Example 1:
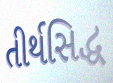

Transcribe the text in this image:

તીર્થસિદ્ધ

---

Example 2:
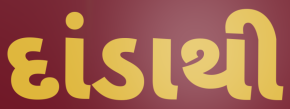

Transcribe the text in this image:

દાંડાથી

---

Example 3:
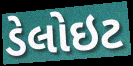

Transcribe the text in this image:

ડેલોઇટ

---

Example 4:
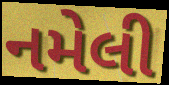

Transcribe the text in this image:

નમેલી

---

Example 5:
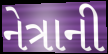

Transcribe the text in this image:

નેત્રાની